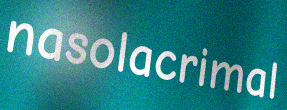
nasolacrimal